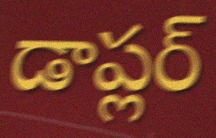
డాప్లర్